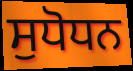
ਸੁਧੋਧਨ